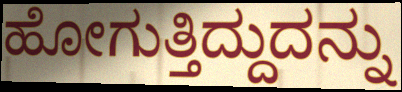
ಹೋಗುತ್ತಿದ್ದುದನ್ನು